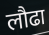
लौढा